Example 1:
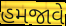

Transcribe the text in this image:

હમજાવે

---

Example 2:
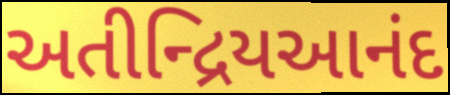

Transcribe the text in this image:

અતીન્દ્રિયઆનંદ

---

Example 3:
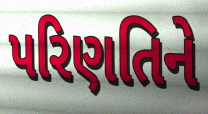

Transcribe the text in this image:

પરિણતિને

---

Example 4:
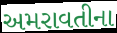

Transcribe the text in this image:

અમરાવતીના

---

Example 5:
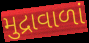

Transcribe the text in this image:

મુદ્રાવાળાં